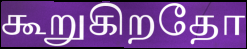
கூறுகிறதோ